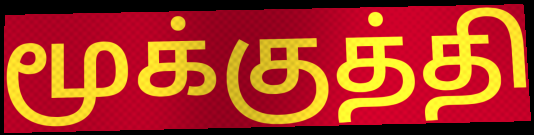
மூக்குத்தி